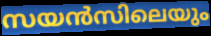
സയൻസിലെയും